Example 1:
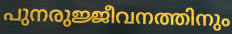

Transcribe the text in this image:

പുനരുജ്ജീവനത്തിനും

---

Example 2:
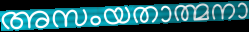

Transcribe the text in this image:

അസംയതാത്മനാ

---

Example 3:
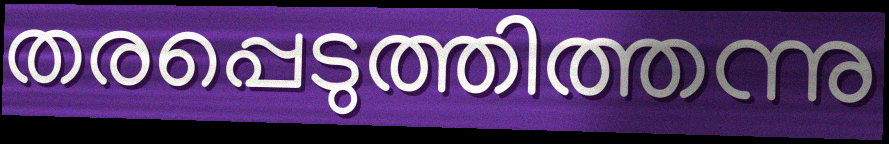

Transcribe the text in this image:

തരപ്പെടുത്തിത്തന്നു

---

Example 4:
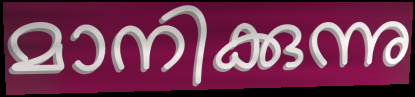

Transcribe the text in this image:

മാനിക്കുന്നു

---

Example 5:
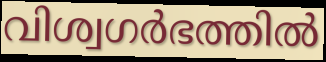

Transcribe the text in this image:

വിശ്വഗർഭത്തിൽ